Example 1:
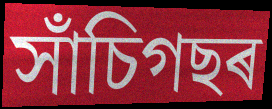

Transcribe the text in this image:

সাঁচিগছৰ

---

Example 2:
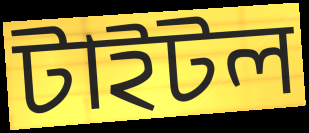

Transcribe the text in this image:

টাইটল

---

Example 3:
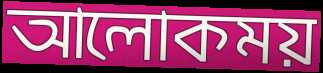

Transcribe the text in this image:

আলোকময়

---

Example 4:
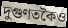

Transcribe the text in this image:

দুগুণতকৈও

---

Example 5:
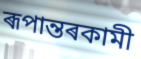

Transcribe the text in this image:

ৰূপান্তৰকামী